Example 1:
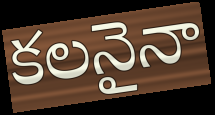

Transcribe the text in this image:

కలనైనా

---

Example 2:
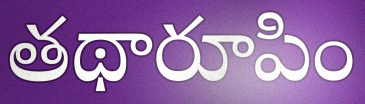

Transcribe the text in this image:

తథారూపిం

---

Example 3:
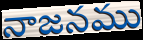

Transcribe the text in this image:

నాజనము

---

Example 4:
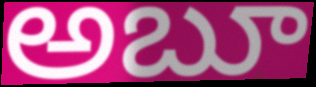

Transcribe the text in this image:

అబూ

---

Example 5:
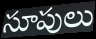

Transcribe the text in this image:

సూపులు